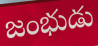
జంభుడు